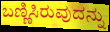
ಬಣ್ಣಿಸಿರುವುದನ್ನು